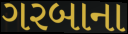
ગરબાના